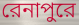
রেনাপুরে